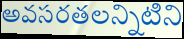
అవసరతలన్నిటిని